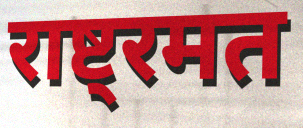
राष्ट्रमत